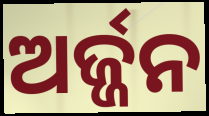
ଅର୍ଜ୍ଜନ